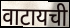
वाटायची